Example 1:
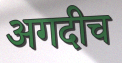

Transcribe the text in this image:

अगदीच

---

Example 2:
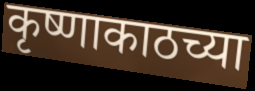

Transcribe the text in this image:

कृष्णाकाठच्या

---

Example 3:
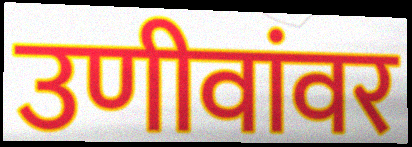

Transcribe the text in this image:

उणीवांवर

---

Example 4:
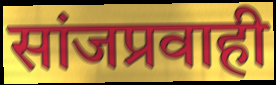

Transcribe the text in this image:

सांजप्रवाही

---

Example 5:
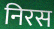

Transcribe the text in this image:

निरस